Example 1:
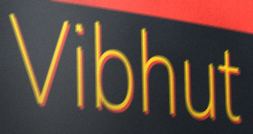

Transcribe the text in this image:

Vibhut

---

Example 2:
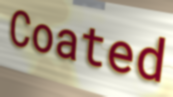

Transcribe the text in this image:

Coated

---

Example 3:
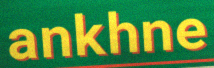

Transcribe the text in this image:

ankhne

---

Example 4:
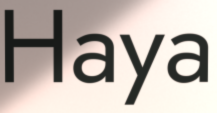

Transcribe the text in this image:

Haya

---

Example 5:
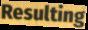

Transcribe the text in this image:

Resulting